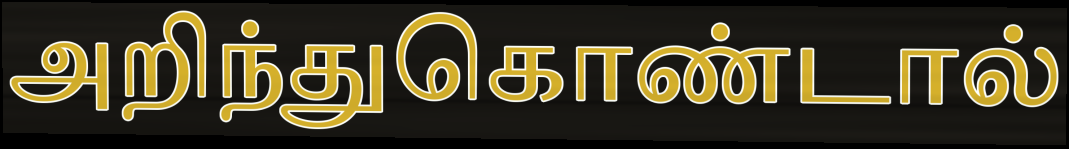
அறிந்துகொண்டால்